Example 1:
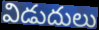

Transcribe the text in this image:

విడుదులు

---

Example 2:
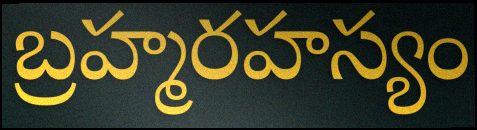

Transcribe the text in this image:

బ్రహ్మరహస్యం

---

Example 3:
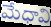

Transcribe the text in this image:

మేధావి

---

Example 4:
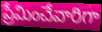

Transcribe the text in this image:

ప్రేమించేవారిగా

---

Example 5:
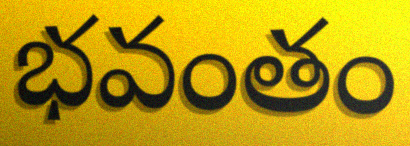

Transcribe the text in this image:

భవంతం